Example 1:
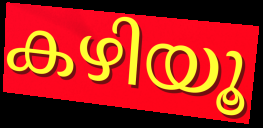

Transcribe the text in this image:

കഴിയൂ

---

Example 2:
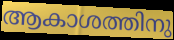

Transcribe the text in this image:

ആകാശത്തിനു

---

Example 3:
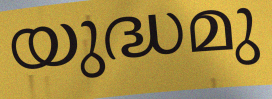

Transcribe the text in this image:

യുദ്ധമു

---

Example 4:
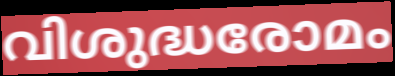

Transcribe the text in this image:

വിശുദ്ധരോമം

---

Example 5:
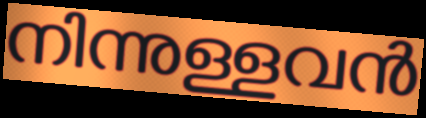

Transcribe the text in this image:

നിന്നുള്ളവൻ